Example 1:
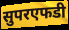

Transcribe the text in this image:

सुपरएफडी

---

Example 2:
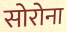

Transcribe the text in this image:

सोरोना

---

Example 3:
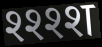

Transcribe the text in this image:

श्श्श्श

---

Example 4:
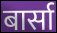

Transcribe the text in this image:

बार्सा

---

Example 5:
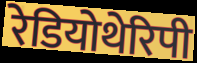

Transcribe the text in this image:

रेडियोथेरिपी